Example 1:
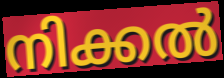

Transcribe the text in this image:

നിക്കൽ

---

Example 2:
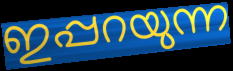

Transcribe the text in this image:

ഇപ്പറയുന്ന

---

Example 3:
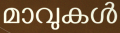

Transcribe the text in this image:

മാവുകൾ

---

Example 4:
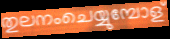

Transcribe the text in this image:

തുലനംചെയ്യുമ്പോള്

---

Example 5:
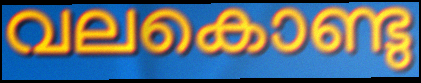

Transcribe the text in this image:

വലകൊണ്ടു